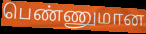
பெண்ணுமான